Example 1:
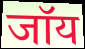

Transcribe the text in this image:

जॉय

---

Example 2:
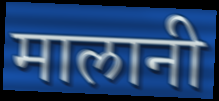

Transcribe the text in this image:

मालानी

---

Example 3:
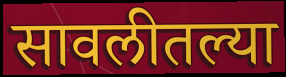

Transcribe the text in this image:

सावलीतल्या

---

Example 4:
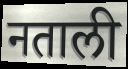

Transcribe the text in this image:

नताली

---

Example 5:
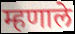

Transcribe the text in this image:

म्हणाले